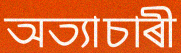
অত্যাচাৰী